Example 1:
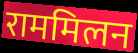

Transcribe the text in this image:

राममिलन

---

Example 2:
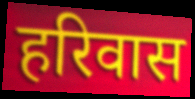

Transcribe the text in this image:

हरिवास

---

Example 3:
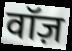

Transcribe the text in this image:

वॉज़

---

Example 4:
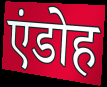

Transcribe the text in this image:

एंडोह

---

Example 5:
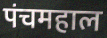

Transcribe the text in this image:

पंचमहाल